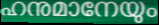
ഹനുമാനേയും